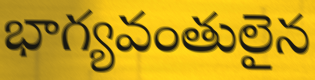
భాగ్యవంతులైన